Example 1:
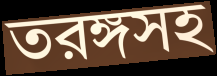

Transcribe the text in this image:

তরঙ্গসহ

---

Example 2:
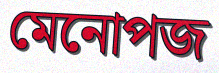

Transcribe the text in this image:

মেনোপজ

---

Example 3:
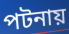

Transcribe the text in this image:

পটনায়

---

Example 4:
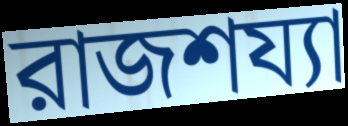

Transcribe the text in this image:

রাজশয্যা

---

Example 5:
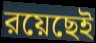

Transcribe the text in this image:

রয়েছেই